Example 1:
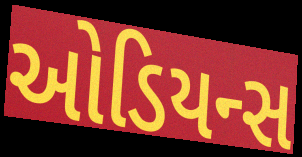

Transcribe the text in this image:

ઓડિયન્સ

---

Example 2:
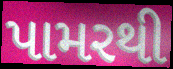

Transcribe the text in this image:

પામરથી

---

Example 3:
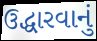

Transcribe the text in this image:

ઉદ્ધારવાનું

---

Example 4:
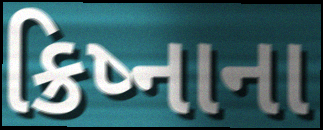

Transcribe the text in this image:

ક્રિષ્નાના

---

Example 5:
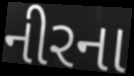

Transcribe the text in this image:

નીરના